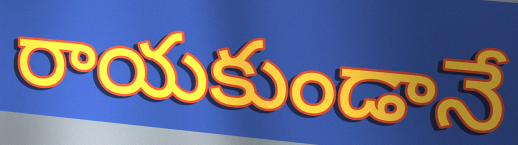
రాయకుండానే